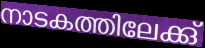
നാടകത്തിലേക്കു്